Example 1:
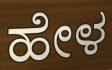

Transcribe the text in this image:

ಹೇಳ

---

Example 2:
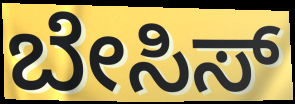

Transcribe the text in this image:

ಬೇಸಿಸ್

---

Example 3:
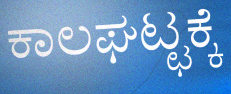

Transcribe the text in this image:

ಕಾಲಘಟ್ಟಕ್ಕೆ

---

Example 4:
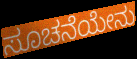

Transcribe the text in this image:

ಸೂಚನೆಯೇನು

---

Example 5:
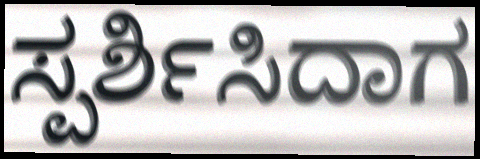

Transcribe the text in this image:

ಸ್ಪರ್ಶಿಸಿದಾಗ